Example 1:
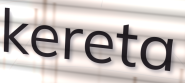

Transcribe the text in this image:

kereta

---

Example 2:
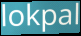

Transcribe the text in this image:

lokpal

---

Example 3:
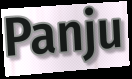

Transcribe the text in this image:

Panju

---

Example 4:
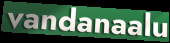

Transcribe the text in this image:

vandanaalu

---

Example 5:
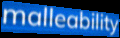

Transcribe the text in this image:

malleability